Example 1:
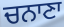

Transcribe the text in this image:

ਚਨਾਣਾ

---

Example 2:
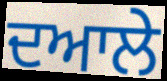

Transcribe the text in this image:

ਦਆਲੇ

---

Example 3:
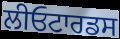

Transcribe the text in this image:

ਲੀਓਟਾਰਡਸ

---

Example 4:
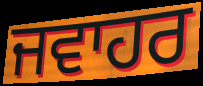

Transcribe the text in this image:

ਜਵਾਹਰ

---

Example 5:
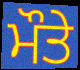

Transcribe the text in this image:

ਮੌਤੇ